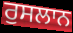
ਰੁਸਲਾਨ